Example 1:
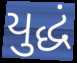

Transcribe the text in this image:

યુદ્ધં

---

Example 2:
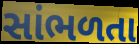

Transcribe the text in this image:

સાંભળતા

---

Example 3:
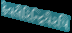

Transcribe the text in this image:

કેવલૈરિન્દ્રિયૈરપિ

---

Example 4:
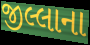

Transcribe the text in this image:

જીલ્લાના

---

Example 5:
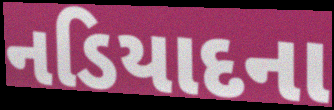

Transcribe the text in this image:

નડિયાદના